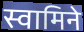
स्वामिने